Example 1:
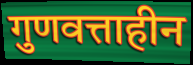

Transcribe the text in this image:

गुणवत्ताहीन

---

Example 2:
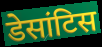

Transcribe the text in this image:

डेसांटिस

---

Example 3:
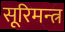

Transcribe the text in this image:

सूरिमन्त्र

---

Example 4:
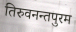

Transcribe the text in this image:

तिरुवनन्तपुरम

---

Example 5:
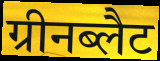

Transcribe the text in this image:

ग्रीनब्लैट